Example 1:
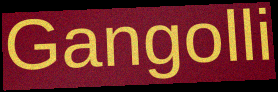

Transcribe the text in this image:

Gangolli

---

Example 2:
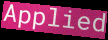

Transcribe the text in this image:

Applied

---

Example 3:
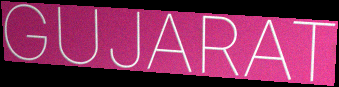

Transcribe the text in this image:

GUJARAT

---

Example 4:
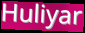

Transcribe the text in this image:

Huliyar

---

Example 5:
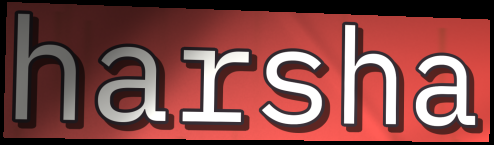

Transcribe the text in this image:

harsha